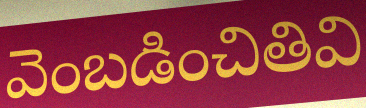
వెంబడించితివి